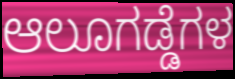
ಆಲೂಗಡ್ಡೆಗಳ